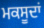
ਮਕਸੂਦਾਂ